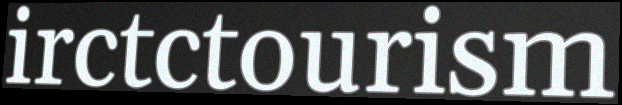
irctctourism